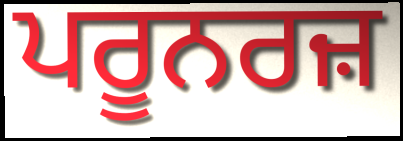
ਪਰੂਨਰਜ਼